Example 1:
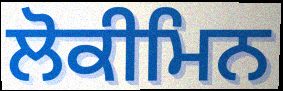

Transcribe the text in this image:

ਲੋਕੀਮਿਨ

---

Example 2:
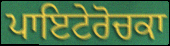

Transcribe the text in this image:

ਪਾਇਟੇਰੋਚਕਾ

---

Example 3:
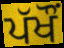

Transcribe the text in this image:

ਪੱਖੌਂ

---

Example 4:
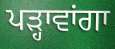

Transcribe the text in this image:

ਪੜ੍ਹਾਵਾਂਗਾ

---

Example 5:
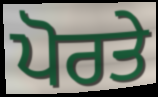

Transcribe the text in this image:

ਪੋਰਤੇ